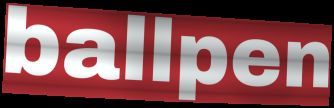
ballpen